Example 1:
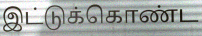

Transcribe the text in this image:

இட்டுக்கொண்ட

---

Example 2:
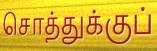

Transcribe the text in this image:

சொத்துக்குப்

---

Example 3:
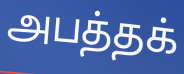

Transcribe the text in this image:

அபத்தக்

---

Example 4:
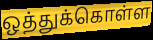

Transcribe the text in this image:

ஒத்துக்கொள்ள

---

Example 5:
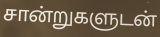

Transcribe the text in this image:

சான்றுகளுடன்